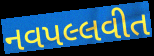
નવપલ્લવીત